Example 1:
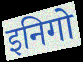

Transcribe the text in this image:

इनिगो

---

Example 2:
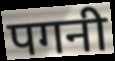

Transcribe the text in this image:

पगनी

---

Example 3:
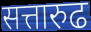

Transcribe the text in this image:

सत्तारुढ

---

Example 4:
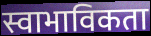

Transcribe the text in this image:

स्वाभाविकता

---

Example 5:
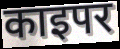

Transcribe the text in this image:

काइपर